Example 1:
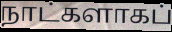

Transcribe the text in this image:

நாட்களாகப்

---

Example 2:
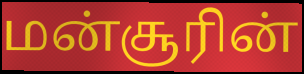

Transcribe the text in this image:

மன்சூரின்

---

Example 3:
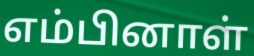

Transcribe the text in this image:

எம்பினாள்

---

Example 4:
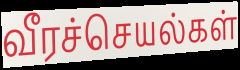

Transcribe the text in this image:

வீரச்செயல்கள்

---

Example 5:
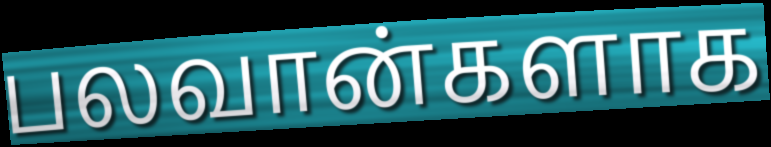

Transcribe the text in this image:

பலவான்களாக